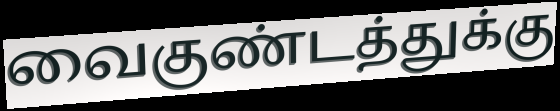
வைகுண்டத்துக்கு